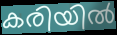
കരിയിൽ